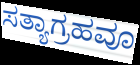
ಸತ್ಯಾಗ್ರಹವೂ